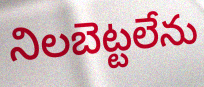
నిలబెట్టలేను